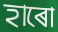
হাৰো